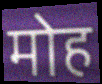
मोह